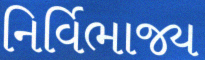
નિર્વિભાજ્ય